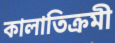
কালাতিক্রমী